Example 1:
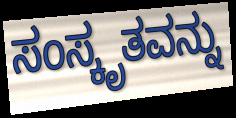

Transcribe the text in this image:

ಸಂಸ್ಕೃತವನ್ನು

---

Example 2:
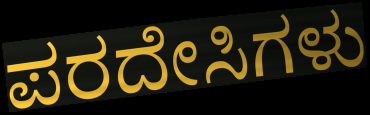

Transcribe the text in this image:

ಪರದೇಸಿಗಳು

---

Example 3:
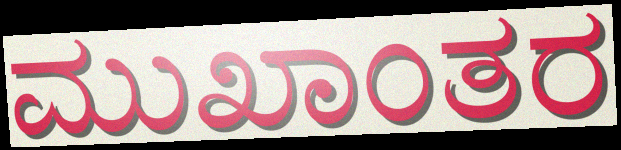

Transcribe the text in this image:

ಮುಖಾಂತರ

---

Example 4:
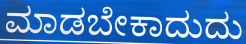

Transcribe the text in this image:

ಮಾಡಬೇಕಾದುದು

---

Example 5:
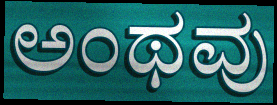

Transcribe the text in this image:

ಅಂಥವು